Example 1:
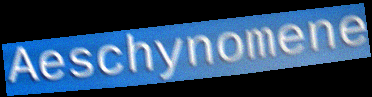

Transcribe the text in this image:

Aeschynomene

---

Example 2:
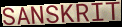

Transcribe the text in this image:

SANSKRIT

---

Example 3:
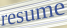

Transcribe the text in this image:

resume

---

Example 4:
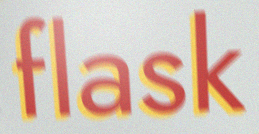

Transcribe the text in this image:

flask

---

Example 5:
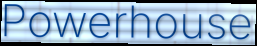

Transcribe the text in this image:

Powerhouse